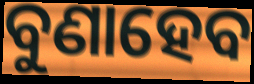
ବୁଣାହେବ